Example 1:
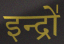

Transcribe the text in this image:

इन्द्रो॑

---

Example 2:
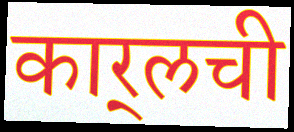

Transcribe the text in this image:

कार्लची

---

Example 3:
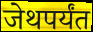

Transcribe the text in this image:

जेथपर्यंत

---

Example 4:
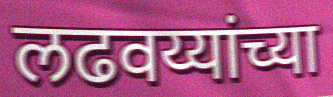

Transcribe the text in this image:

लढवय्यांच्या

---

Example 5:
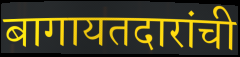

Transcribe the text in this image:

बागायतदारांची